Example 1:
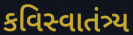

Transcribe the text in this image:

કવિસ્વાતંત્ર્ય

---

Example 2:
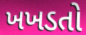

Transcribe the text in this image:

ખખડતો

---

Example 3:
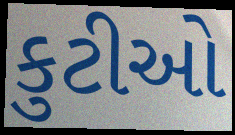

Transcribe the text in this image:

કુટીઓ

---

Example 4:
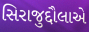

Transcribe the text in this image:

સિરાજુદ્દૌલાએ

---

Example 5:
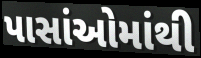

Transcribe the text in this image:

પાસાંઓમાંથી